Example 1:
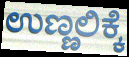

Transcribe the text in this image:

ಉಣ್ಣಲಿಕ್ಕೆ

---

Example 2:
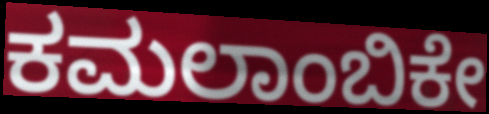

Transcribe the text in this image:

ಕಮಲಾಂಬಿಕೇ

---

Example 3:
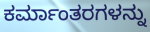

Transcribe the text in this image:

ಕರ್ಮಾಂತರಗಳನ್ನು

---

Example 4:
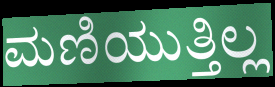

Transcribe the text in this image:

ಮಣಿಯುತ್ತಿಲ್ಲ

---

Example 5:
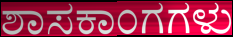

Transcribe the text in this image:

ಶಾಸಕಾಂಗಗಳು